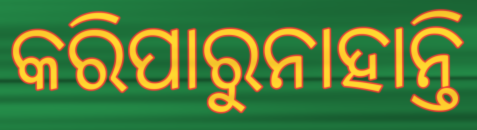
କରିପାରୁନାହାନ୍ତି